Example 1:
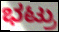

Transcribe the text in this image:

ಭಟ್ರು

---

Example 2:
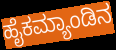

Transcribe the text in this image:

ಹೈಕಮ್ಯಾಂಡಿನ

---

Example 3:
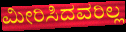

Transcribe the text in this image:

ಮೀರಿಸಿದವರಿಲ್ಲ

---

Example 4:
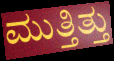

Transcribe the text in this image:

ಮುತ್ತಿತ್ತು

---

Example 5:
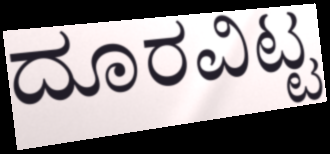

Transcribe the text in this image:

ದೂರವಿಟ್ಟ